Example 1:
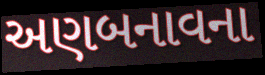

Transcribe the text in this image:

અણબનાવના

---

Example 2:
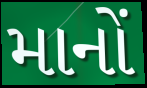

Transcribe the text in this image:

માનોં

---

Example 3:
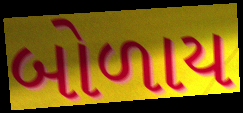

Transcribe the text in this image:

બોળાય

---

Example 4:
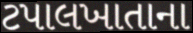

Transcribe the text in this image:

ટપાલખાતાના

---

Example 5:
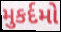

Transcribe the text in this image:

મુકર્દમો